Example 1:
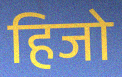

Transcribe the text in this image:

हिजो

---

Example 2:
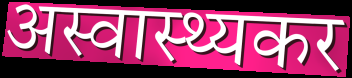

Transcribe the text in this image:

अस्वास्थ्यकर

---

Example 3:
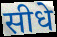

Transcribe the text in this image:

सीधे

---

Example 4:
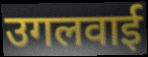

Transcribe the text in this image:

उगलवाई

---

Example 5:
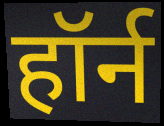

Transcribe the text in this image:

हॉर्न